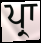
ਪ੍ਰਾ